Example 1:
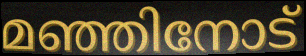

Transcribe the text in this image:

മഞ്ഞിനോട്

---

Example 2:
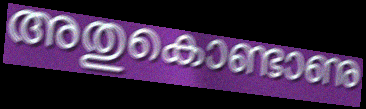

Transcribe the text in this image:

അതുകൊണ്ടാണു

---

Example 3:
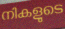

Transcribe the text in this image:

നികളുടെ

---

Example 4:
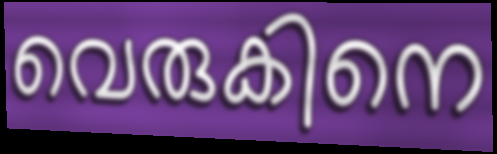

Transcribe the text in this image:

വെരുകിനെ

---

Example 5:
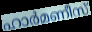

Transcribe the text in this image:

ഹാർമണീസ്